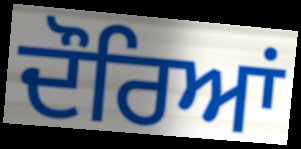
ਦੌਰਿਆਂ